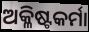
ଅକ୍ଳିଷ୍ଟକର୍ମା